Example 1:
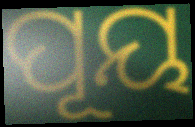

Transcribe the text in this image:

ପୂୟ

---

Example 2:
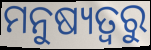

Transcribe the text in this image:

ମନୁଷ୍ୟତ୍ୱରୁ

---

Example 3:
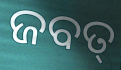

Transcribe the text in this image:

ଜବତ୍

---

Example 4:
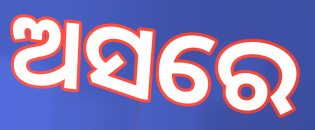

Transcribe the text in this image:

ଅସରେ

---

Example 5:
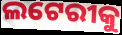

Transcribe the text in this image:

ଲଟେରୀକୁ